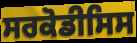
ਸਰਕੋਡੀਸਿਸ